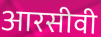
आरसीवी